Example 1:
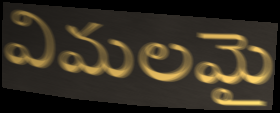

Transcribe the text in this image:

విమలమై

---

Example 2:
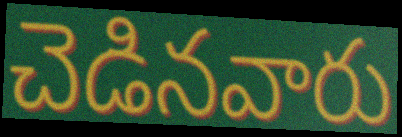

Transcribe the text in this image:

చెడినవారు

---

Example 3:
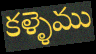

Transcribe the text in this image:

కళ్ళెము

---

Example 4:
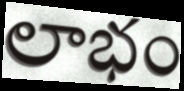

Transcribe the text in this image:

లాభం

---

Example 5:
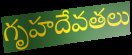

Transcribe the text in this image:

గృహదేవతలు